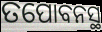
ତପୋବନସ୍ଥ